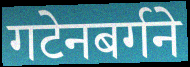
गटेनबर्गने